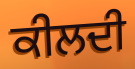
ਕੀਲਦੀ